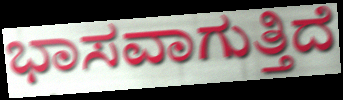
ಭಾಸವಾಗುತ್ತಿದೆ